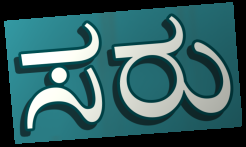
ಸರು